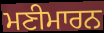
ਮਣੀਮਾਰਨ